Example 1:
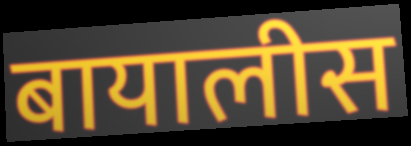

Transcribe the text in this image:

बायालीस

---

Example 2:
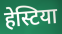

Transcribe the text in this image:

हेस्टिया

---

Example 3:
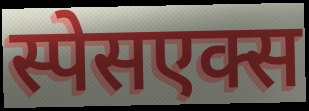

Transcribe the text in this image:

स्पेसएक्स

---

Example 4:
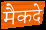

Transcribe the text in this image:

मैकदे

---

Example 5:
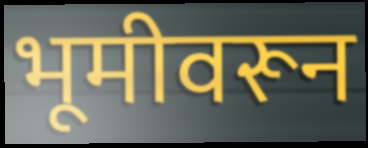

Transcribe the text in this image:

भूमीवरून